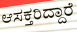
ಆಸಕ್ತರಿದ್ದಾರೆ